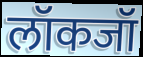
लॉकजॉ